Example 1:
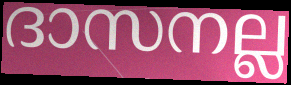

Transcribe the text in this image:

ദാസനല്ല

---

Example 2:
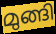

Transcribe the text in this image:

മുങ്ങി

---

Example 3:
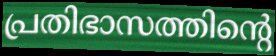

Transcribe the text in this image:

പ്രതിഭാസത്തിന്റെ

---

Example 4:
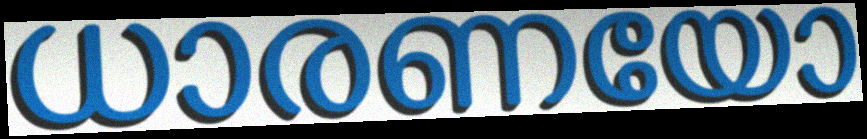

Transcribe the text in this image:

ധാരണയോ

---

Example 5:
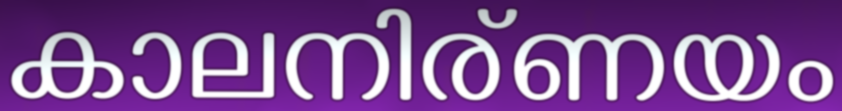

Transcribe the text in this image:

കാലനിര്ണയം